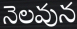
నెలవున